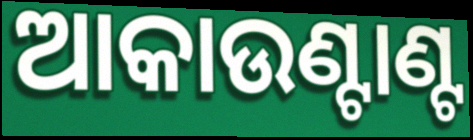
ଆକାଉଣ୍ଟାଣ୍ଟ